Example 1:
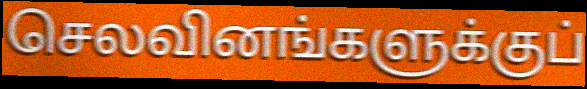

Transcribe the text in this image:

செலவினங்களுக்குப்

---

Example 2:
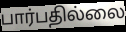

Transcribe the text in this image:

பார்பதில்லை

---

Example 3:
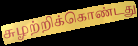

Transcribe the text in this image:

சுழற்றிக்கொண்டது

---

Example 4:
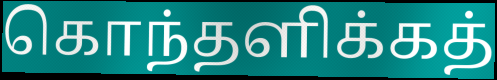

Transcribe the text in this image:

கொந்தளிக்கத்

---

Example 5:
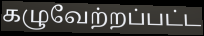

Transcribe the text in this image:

கழுவேற்றப்பட்ட